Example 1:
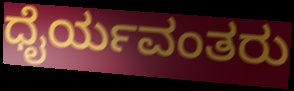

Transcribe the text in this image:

ಧೈರ್ಯವಂತರು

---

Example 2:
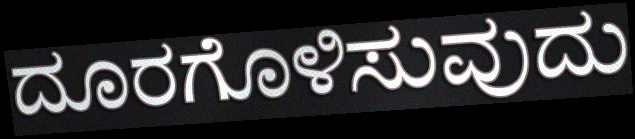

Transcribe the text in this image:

ದೂರಗೊಳಿಸುವುದು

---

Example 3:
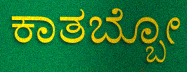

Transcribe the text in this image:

ಕಾತಬ್ಬೋ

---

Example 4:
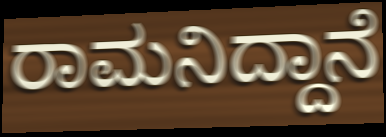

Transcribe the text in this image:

ರಾಮನಿದ್ದಾನೆ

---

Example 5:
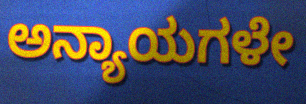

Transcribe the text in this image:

ಅನ್ಯಾಯಗಳೇ